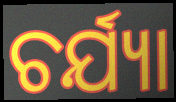
ଚର୍ଯ୍ଯା